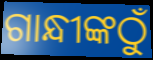
ଗାନ୍ଧୀଙ୍କଠୁଁ